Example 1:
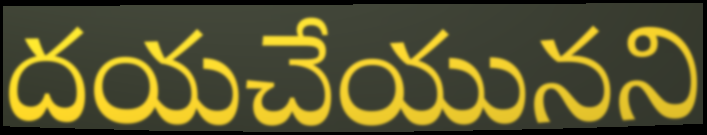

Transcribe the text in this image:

దయచేయునని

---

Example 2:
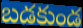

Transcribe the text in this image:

బడకుండ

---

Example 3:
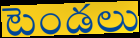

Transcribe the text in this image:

టెండలు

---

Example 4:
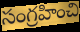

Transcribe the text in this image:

సంగ్రహించి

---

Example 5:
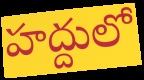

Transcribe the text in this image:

హద్దులో